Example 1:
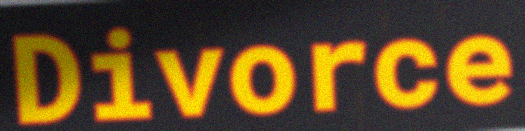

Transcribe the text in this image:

Divorce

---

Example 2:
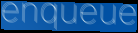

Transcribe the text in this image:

enqueue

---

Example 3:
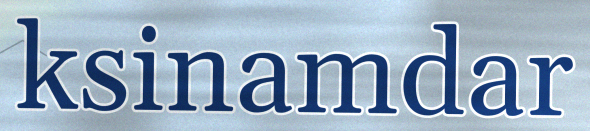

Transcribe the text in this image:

ksinamdar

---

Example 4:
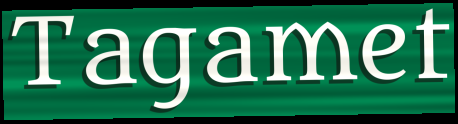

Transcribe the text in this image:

Tagamet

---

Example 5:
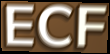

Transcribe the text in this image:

ECF